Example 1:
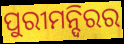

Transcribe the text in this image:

ପୁରୀମନ୍ଦିରର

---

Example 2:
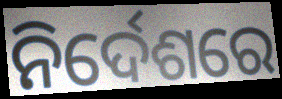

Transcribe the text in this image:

ନିର୍ଦେଶରେ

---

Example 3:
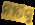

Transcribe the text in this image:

ନୀତିକୁ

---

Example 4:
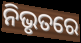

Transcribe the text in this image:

ନିଭୃତରେ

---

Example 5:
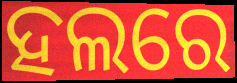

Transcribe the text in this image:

ହଲରେ